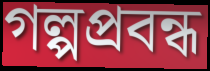
গল্পপ্রবন্ধ